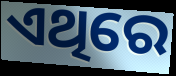
ଏଥିରେ